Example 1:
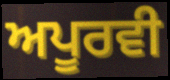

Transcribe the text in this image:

ਅਪੂਰਵੀ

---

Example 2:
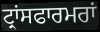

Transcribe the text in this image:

ਟ੍ਰਾਂਸਫਾਰਮਰਾਂ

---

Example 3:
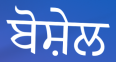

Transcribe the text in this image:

ਬੋਸ਼ੇਲ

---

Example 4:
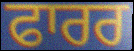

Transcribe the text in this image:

ਫਾਰਰ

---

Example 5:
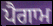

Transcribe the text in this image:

ਪੈਗਾਮ